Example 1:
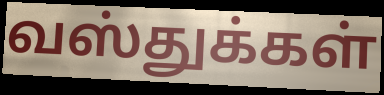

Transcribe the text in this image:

வஸ்துக்கள்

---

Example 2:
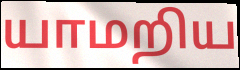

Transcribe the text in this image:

யாமறிய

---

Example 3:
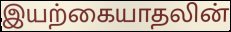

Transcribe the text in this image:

இயற்கையாதலின்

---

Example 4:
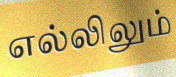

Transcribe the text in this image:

எல்லிலும்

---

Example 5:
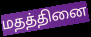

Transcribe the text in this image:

மதத்தினை